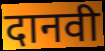
दानवी